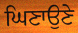
ਘਿਣਾਉਣੇ